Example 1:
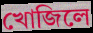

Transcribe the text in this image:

খোজিলে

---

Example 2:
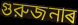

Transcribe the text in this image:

গুৰুজনাৰ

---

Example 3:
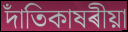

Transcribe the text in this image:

দাঁতিকাষৰীয়া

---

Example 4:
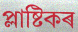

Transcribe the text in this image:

প্লাষ্টিকৰ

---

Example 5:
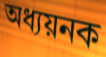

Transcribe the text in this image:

অধ্যয়নক